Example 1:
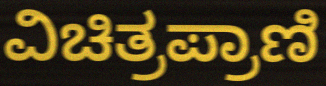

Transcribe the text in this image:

ವಿಚಿತ್ರಪ್ರಾಣಿ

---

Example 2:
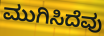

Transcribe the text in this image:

ಮುಗಿಸಿದೆವು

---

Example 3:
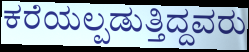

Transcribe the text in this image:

ಕರೆಯಲ್ಪಡುತ್ತಿದ್ದವರು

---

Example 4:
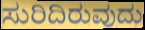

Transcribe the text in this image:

ಸುರಿದಿರುವುದು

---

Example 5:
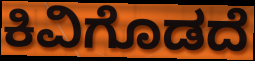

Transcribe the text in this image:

ಕಿವಿಗೊಡದೆ